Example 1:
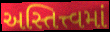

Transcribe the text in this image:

અસ્તિત્ત્વમાં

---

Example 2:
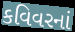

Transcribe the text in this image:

કવિવરનાં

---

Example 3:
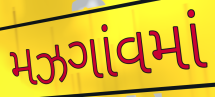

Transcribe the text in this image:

મઝગાંવમાં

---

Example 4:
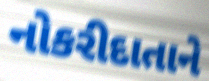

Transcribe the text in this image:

નોકરીદાતાને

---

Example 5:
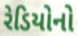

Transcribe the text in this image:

રેડિયોનો